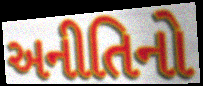
અનીતિનો